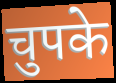
चुपके